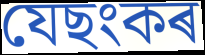
যেছংকৰ